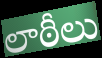
లాఠీలు